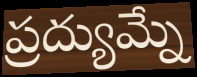
ప్రద్యుమ్నే